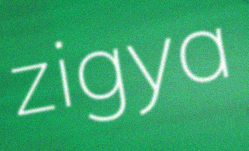
zigya